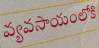
వ్యవసాయంలోకి